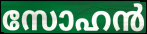
സോഹൻ